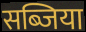
सब्ज़िया